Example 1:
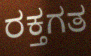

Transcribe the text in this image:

ರಕ್ತಗತ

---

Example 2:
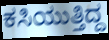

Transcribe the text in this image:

ಕಸಿಯುತ್ತಿದ್ದ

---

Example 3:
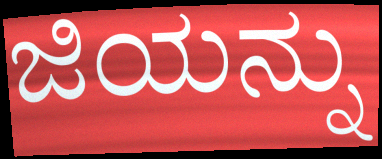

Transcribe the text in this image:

ಜಿಯನ್ನು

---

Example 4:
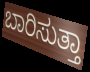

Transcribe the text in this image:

ಬಾರಿಸುತ್ತಾ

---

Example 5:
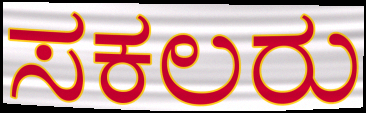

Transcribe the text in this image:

ಸಕಲರು